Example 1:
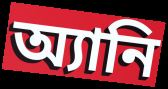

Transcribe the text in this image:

অ্যানি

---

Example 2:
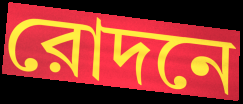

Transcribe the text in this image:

রোদনে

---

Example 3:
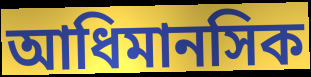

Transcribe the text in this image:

আধিমানসিক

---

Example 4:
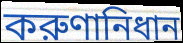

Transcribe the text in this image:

করুণানিধান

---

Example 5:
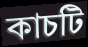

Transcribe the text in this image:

কাচটি